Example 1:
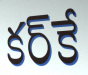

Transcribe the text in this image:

కర్‌కే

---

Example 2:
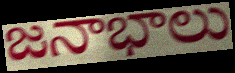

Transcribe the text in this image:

జనాభాలు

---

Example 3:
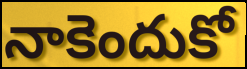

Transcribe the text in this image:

నాకెందుకో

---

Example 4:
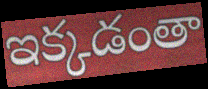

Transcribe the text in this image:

ఇక్కడంతా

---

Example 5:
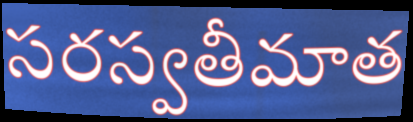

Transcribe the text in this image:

సరస్వతీమాత